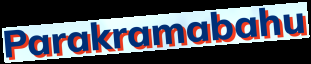
Parakramabahu